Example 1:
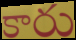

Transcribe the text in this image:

కారు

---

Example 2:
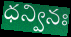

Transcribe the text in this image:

ధన్వినః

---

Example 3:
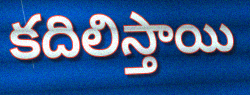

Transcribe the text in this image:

కదిలిస్తాయి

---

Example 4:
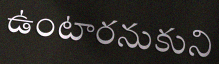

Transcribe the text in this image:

ఉంటారనుకుని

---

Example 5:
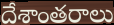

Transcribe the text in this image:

దేశాంతరాలు